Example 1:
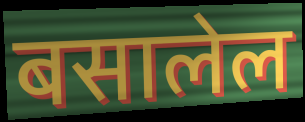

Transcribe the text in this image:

बसालेल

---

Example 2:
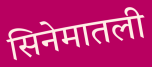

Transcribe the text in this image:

सिनेमातली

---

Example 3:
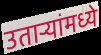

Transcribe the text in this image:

उतार्‍यांमध्ये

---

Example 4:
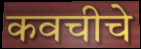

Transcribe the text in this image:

कवचीचे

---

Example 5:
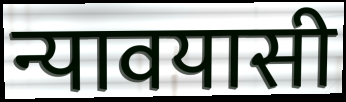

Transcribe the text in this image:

न्यावयासी